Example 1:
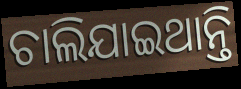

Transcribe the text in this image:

ଚାଲିଯାଇଥାନ୍ତି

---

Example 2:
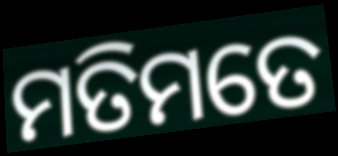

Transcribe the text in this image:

ମତିମତେ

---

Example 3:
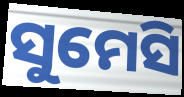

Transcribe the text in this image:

ସୁମେସି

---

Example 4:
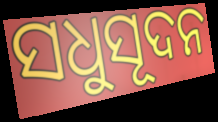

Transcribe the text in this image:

ସଧୁସୂଦନ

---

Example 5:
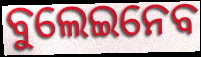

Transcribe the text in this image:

ବୁଲେଇନେବ